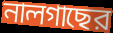
নালগাছের